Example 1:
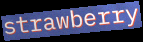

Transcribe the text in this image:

strawberry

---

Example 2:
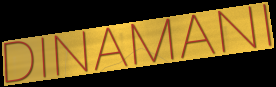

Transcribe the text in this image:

DINAMANI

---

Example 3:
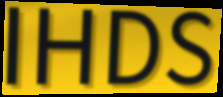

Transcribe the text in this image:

IHDS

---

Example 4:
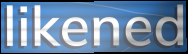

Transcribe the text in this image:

likened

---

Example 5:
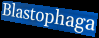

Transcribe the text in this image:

Blastophaga